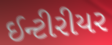
ઈન્ટીરીયર